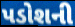
પડોશની